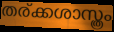
തര്ക്കശാസ്ത്രം